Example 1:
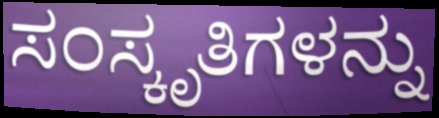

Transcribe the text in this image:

ಸಂಸ್ಕೃತಿಗಳನ್ನು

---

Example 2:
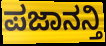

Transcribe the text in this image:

ಪಜಾನನ್ತಿ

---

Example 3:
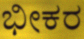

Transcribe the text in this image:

ಭೀಕರ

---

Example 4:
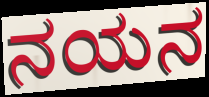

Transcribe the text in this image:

ನಯನ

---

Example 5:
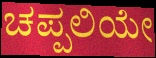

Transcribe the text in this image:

ಚಪ್ಪಲಿಯೇ